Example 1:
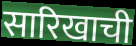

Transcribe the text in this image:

सारिखाची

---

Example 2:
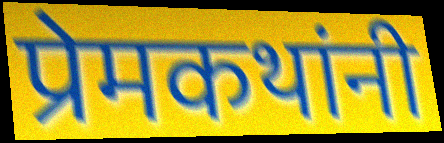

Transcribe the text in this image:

प्रेमकथांनी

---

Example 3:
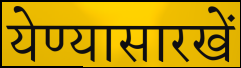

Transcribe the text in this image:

येण्यासारखें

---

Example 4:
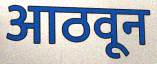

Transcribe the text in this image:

आठवून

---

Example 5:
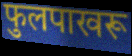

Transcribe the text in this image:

फुलपाखरू